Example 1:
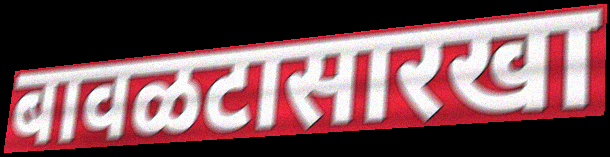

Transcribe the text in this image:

बावळटासारखा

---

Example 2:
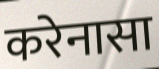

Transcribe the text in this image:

करेनासा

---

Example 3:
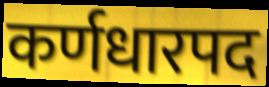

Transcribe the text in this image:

कर्णधारपद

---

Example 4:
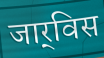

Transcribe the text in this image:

जार्विस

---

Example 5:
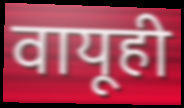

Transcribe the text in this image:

वायूही